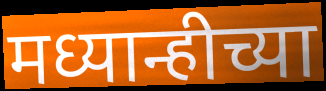
मध्यान्हीच्या